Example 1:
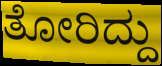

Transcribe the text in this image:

ತೋರಿದ್ದು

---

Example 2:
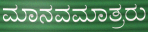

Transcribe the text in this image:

ಮಾನವಮಾತ್ರರು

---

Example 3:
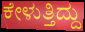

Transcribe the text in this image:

ಕೇಳುತ್ತಿದ್ದು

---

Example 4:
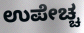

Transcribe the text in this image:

ಉಪೇಚ್ಚ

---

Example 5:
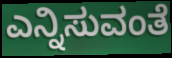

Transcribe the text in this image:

ಎನ್ನಿಸುವಂತೆ